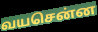
வயசென்ன